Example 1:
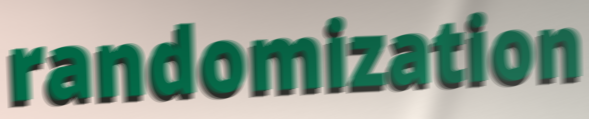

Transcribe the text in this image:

randomization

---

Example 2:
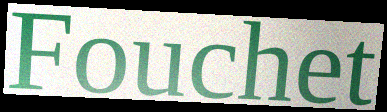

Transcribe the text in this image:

Fouchet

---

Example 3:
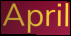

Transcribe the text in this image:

April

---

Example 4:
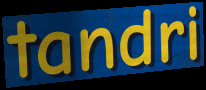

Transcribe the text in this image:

tandri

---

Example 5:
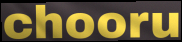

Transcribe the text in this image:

chooru